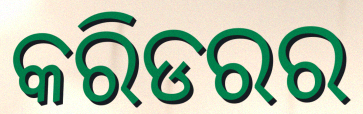
କରିଡରର